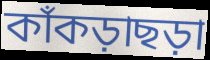
কাঁকড়াছড়া